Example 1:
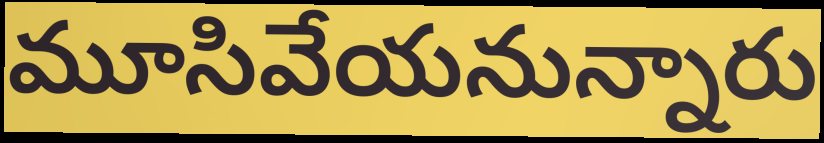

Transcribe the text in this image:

మూసివేయనున్నారు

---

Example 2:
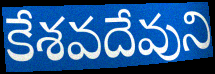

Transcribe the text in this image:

కేశవదేవుని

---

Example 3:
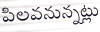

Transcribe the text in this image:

పిలవనున్నట్లు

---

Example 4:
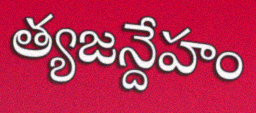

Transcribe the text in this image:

త్యజన్దేహం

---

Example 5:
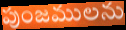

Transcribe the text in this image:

పుంజములను